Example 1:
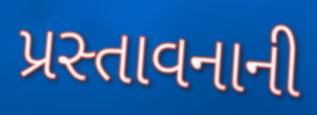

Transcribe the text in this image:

પ્રસ્તાવનાની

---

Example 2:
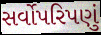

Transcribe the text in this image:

સર્વોપરિપણું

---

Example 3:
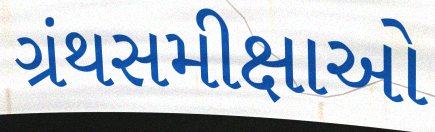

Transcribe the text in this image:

ગ્રંથસમીક્ષાઓ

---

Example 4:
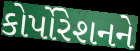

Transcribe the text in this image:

કોર્પોરેશનને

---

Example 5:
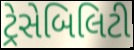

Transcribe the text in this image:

ટ્રેસેબિલિટી